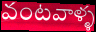
వంటవాళ్ళ